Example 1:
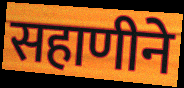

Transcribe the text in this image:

सहाणीने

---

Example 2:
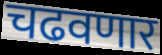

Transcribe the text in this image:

चढवणार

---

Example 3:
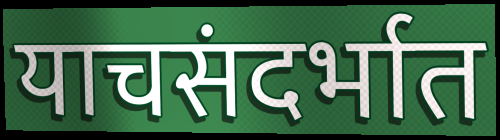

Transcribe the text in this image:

याचसंदर्भात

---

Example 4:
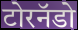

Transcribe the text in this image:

टोरनॅडो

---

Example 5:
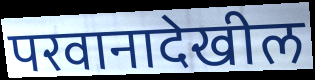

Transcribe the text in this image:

परवानादेखील